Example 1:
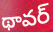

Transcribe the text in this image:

థావర్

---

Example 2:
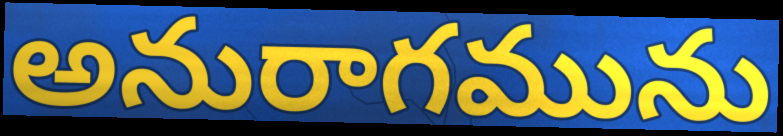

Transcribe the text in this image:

అనురాగమును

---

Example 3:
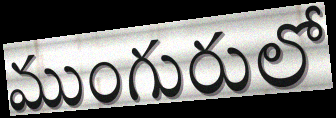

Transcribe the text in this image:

ముంగురులో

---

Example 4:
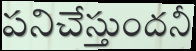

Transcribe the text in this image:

పనిచేస్తుందనీ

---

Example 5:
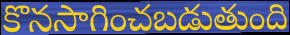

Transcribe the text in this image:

కొనసాగించబడుతుంది